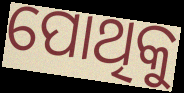
ପୋଥିକୁ